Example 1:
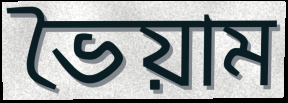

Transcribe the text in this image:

ভৈয়াম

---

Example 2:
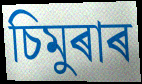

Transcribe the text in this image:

চিমুৰাৰ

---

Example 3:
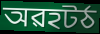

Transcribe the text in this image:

অৱহটঠ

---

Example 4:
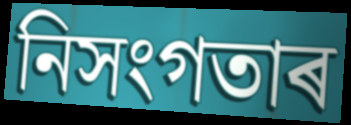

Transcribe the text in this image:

নিসংগতাৰ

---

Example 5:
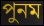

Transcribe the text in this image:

পুনম